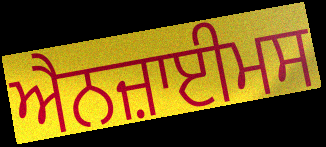
ਐਨਜ਼ਾਈਮਸ